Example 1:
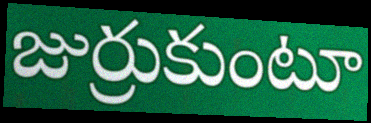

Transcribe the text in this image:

జుర్రుకుంటూ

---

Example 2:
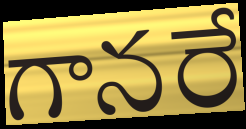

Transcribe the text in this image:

గానరే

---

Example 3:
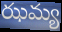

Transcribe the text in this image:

ఝమ్య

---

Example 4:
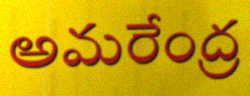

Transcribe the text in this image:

అమరేంద్ర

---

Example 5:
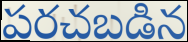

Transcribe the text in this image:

పరచబడిన